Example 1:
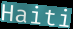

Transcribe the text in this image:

Haiti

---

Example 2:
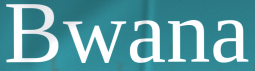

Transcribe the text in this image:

Bwana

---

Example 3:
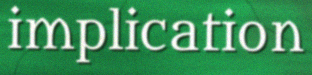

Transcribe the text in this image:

implication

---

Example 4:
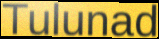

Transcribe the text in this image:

Tulunad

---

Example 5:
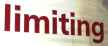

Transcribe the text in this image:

limiting